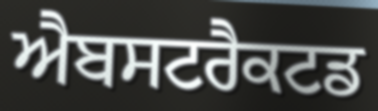
ਐਬਸਟਰੈਕਟਡ